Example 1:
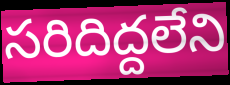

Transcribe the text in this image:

సరిదిద్దలేని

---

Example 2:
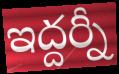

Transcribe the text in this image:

ఇద్దర్నీ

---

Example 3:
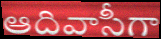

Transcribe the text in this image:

ఆదివాసీగా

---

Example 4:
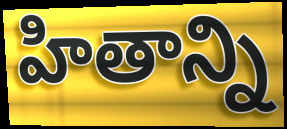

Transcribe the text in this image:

హితాన్ని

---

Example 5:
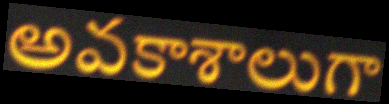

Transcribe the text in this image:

అవకాశాలుగా